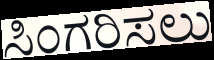
ಸಿಂಗರಿಸಲು